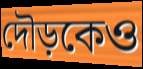
দৌড়কেও